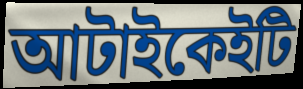
আটাইকেইটি